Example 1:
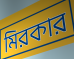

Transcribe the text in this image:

মিরকার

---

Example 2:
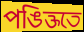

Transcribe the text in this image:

পঙিক্ততে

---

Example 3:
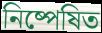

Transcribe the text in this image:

নিষ্পেষিত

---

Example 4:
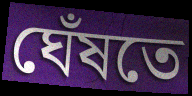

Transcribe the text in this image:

ঘেঁষতে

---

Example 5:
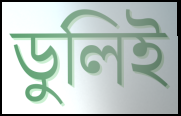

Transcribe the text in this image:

ডুলিই